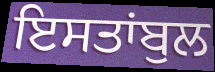
ਇਸਤਾਂਬੁਲ